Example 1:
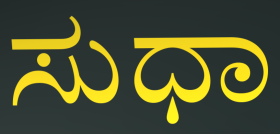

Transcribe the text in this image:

ಸುಧಾ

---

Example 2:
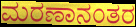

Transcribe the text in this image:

ಮರಣಾನಂತರ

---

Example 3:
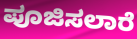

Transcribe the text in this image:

ಪೂಜಿಸಲಾರೆ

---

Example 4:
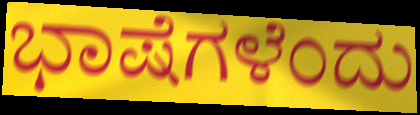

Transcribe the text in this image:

ಭಾಷೆಗಳೆಂದು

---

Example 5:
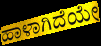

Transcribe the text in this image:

ಹಾಳಾಗಿದೆಯೇ